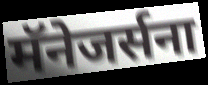
मॅनेजर्सना